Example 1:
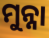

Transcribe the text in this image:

ମୁନ୍ନା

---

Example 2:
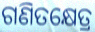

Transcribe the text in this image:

ଗଣିତକ୍ଷେତ୍ର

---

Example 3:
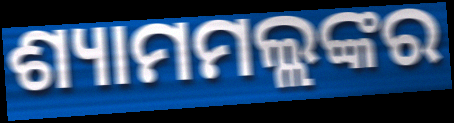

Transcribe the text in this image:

ଶ୍ୟାମମଲ୍ଲଙ୍କର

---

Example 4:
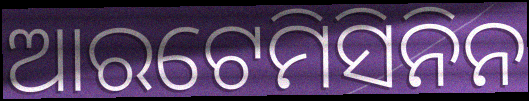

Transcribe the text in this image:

ଆରଟେମିସିନିନ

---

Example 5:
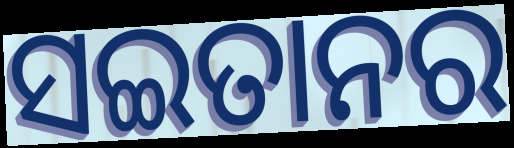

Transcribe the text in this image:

ସଇତାନର